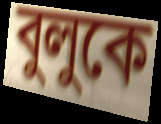
বুলুকে